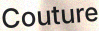
Couture